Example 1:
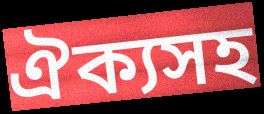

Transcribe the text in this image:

ঐক্যসহ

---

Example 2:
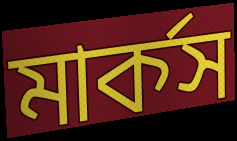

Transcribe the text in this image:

মার্কস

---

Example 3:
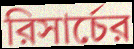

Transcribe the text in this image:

রিসার্চের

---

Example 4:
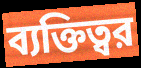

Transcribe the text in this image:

ব্যক্তিত্বর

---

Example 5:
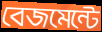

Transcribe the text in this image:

বেজমেন্টে